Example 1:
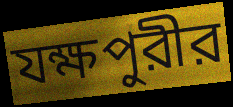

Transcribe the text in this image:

যক্ষপুরীর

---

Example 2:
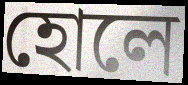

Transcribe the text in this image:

হোলে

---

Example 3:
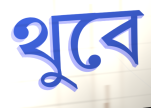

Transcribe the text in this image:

থুবে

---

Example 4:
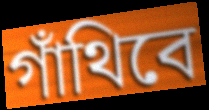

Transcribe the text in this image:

গাঁথিবে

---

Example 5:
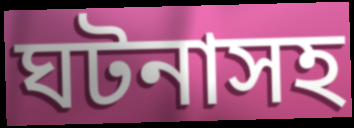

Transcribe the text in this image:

ঘটনাসহ